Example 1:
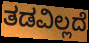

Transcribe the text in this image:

ತಡವಿಲ್ಲದೆ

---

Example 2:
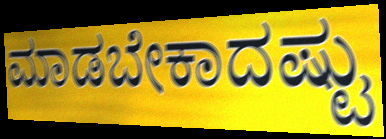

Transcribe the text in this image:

ಮಾಡಬೇಕಾದಷ್ಟು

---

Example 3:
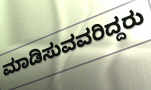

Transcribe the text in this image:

ಮಾಡಿಸುವವರಿದ್ದರು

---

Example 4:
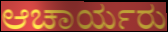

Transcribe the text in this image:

ಆಚಾರ್ಯರು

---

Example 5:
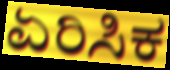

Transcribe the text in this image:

ಏರಿಸಿಕ